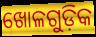
ଖୋଳଗୁଡ଼ିକ